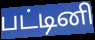
பட்டினி